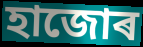
হাজোৰ